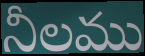
నీలము